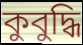
কুবুদ্ধি